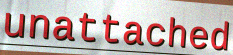
unattached